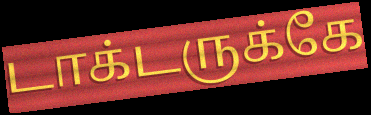
டாக்டருக்கே